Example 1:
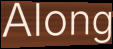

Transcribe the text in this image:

Along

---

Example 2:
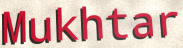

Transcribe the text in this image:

Mukhtar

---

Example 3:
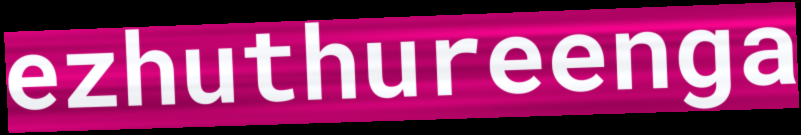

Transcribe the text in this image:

ezhuthureenga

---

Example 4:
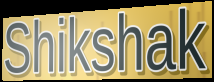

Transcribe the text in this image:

Shikshak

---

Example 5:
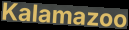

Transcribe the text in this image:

Kalamazoo